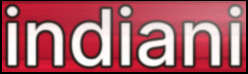
indiani